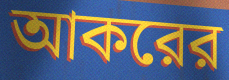
আকরের